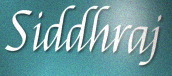
Siddhraj